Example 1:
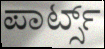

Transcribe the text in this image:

ಪಾರ್ಟ್ಸ್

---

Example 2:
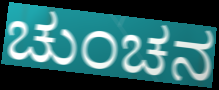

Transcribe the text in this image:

ಚುಂಚನ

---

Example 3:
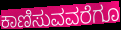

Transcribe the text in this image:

ಕಾಣಿಸುವವರೆಗೂ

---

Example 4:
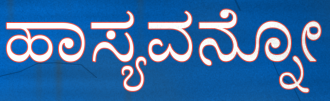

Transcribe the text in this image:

ಹಾಸ್ಯವನ್ನೋ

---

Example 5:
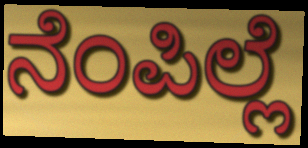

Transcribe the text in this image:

ನೆಂಪಿಲ್ಲೆ